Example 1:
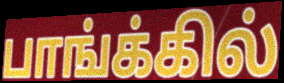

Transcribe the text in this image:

பாங்க்கில்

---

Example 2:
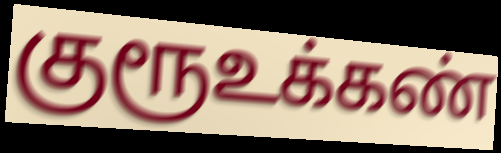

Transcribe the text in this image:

குரூஉக்கண்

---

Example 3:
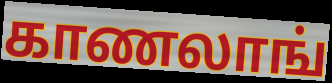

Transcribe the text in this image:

காணலாங்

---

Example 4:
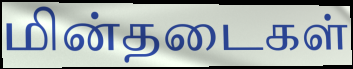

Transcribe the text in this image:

மின்தடைகள்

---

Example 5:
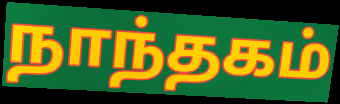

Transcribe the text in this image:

நாந்தகம்